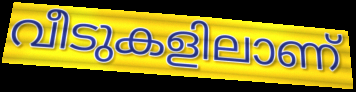
വീടുകളിലാണ്